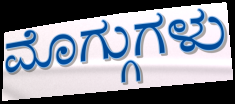
ಮೊಗ್ಗುಗಳು